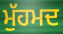
ਮੁੱਹਮਦ